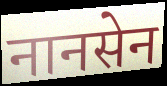
नानसेन